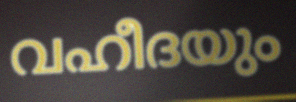
വഹീദയും